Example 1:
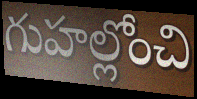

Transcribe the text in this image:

గుహల్లోంచి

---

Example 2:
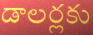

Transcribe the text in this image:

డాలర్లకు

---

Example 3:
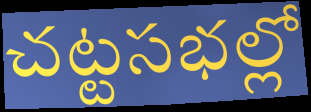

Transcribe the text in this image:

చట్టసభల్లో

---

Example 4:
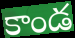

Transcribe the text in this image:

కాండ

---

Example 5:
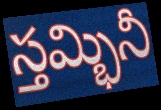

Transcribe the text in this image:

స్తమ్భినీ